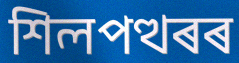
শিলপত্থৰৰ